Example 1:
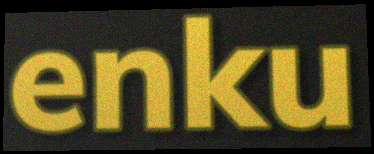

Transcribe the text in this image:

enku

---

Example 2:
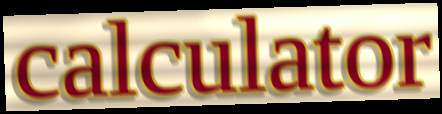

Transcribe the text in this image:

calculator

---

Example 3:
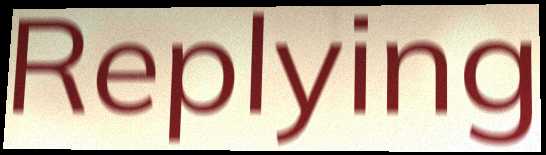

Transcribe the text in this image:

Replying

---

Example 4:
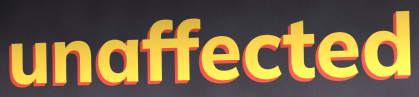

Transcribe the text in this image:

unaffected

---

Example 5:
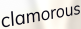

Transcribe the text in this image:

clamorous